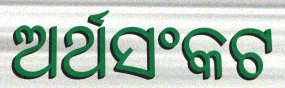
ଅର୍ଥସଂକଟ